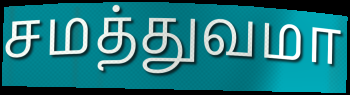
சமத்துவமா